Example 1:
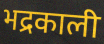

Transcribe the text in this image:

भद्रकाली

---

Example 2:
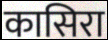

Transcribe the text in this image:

कासिरा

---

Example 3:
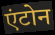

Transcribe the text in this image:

एंटोन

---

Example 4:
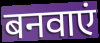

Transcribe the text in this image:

बनवाएं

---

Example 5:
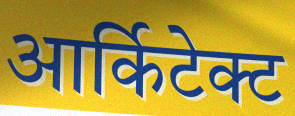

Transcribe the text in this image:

आर्किटेक्ट